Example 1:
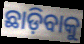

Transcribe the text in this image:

ଛାଡ଼ିବାକୁ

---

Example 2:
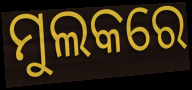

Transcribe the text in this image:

ମୁଲକରେ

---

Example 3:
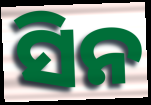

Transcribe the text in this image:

ସିନ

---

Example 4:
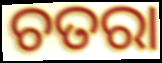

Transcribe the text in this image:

ଚତରା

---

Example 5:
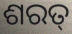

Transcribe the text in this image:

ଶରତ୍